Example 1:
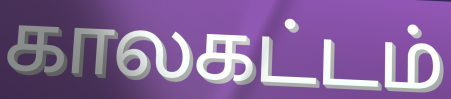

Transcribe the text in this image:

காலகட்டம்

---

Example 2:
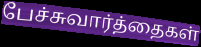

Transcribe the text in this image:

பேச்சுவார்த்தைகள்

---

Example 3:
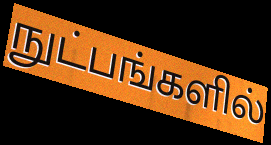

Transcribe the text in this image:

நுட்பங்களில்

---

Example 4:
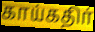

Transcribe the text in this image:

காய்கதிர்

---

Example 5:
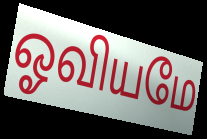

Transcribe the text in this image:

ஓவியமே